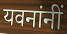
यवनांनीं